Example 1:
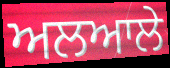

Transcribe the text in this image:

ਅਲਆਲੇ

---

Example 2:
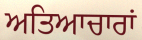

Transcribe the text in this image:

ਅਤਿਆਚਾਰਾਂ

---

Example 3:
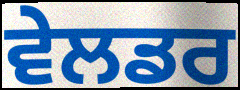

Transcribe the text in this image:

ਵੇਲਡਰ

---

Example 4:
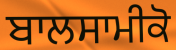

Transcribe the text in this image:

ਬਾਲਸਾਮੀਕੋ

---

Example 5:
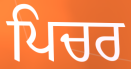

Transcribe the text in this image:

ਪਿਚਰ